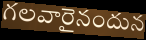
గలవారైనందున